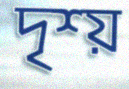
দৃশ্য়